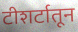
टीशर्टातून